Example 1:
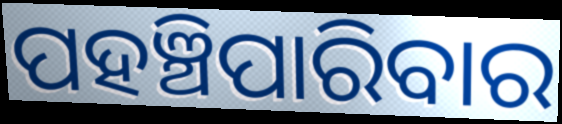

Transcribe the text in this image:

ପହଞ୍ଚିପାରିବାର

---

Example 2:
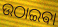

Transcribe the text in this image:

ଉଠାଇଵା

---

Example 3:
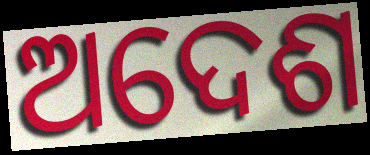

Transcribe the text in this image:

ଅଦେଶ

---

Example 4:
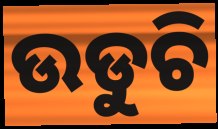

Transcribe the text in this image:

ଉଡୁଚି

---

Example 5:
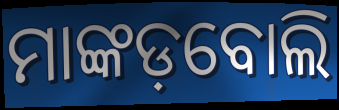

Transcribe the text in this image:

ମାଙ୍କଡ଼ବୋଲି